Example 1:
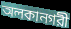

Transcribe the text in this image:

অলকানগরী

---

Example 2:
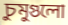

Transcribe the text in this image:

চুমুগুলো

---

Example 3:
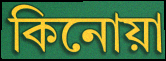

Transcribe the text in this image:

কিনোয়া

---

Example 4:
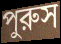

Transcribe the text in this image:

পুরুস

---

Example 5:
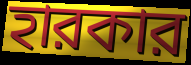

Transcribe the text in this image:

হারকার